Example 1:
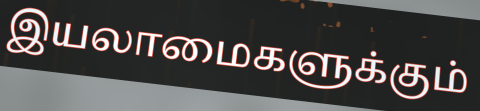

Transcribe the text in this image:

இயலாமைகளுக்கும்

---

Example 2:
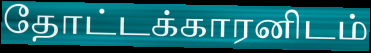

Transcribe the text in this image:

தோட்டக்காரனிடம்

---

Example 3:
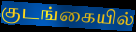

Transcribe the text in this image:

குடங்கையில்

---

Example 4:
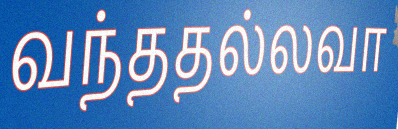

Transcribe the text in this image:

வந்ததல்லவா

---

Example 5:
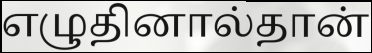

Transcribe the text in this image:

எழுதினால்தான்